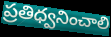
ప్రతిధ్వనించాలి